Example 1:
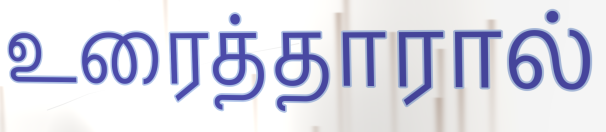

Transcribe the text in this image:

உரைத்தாரால்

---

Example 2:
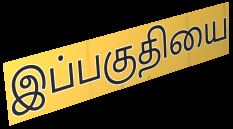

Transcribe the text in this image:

இப்பகுதியை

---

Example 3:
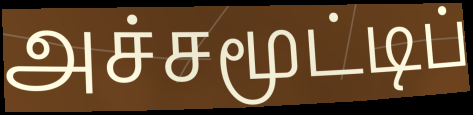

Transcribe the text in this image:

அச்சமூட்டிப்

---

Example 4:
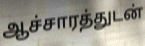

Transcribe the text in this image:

ஆச்சாரத்துடன்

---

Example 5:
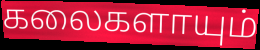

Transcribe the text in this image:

கலைகளாயும்